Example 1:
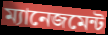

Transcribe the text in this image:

ম্যানেজমেন্ট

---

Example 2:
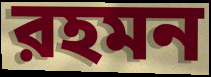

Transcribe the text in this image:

রহমন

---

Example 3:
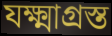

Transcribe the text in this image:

যক্ষ্মাগ্রস্ত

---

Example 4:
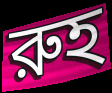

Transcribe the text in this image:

রুহ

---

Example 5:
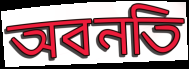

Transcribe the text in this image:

অবনতি